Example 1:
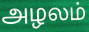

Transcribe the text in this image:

அழலம்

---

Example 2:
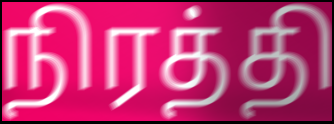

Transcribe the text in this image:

நிரத்தி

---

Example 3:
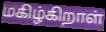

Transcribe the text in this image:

மகிழ்கிறாள்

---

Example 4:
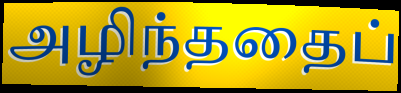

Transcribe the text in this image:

அழிந்ததைப்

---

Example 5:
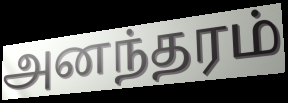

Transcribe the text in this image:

அனந்தரம்